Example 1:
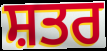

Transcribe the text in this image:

ਸ਼ਤਰ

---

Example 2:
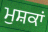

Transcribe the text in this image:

ਮੁਸ਼ਕਾਂ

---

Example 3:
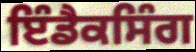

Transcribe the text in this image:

ਇੰਡੈਕਸਿੰਗ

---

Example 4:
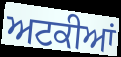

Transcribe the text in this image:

ਅਟਕੀਆਂ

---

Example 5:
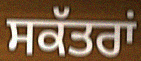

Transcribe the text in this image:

ਸਕੱਤਰਾਂ